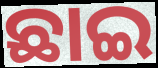
ଛାଇ